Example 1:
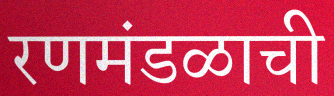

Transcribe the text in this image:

रणमंडळाची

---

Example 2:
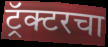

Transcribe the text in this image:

ट्रॅक्टरचा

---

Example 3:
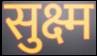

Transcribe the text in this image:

सुक्ष्म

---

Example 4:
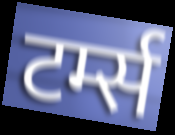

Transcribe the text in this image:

टर्म्स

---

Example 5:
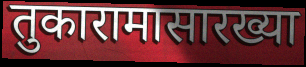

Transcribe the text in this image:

तुकारामासारख्या